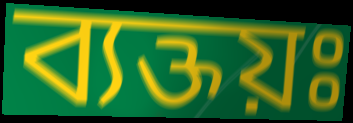
ব্যক্তয়ঃ